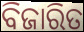
ବିଜାରିତ